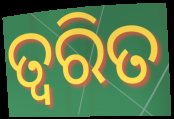
ତ୍ବରିତ